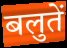
बलुतें